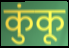
कुंकू